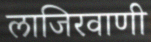
लाजिरवाणी